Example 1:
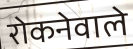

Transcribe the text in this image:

रोकनेवाले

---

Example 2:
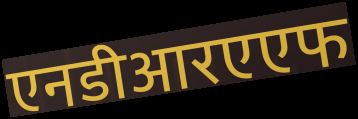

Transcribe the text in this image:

एनडीआरएएफ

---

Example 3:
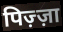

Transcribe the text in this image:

पिज़्ज़ा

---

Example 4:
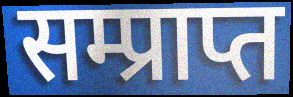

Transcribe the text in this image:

सम्प्राप्त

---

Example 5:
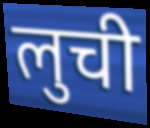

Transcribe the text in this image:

लुची